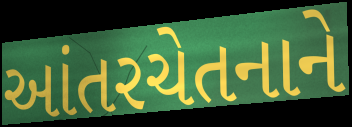
આંતરચેતનાને